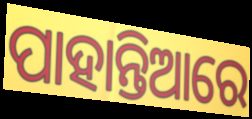
ପାହାନ୍ତିଆରେ